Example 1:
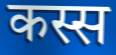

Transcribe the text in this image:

कस्स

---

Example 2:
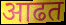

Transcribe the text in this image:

आढत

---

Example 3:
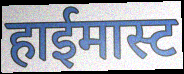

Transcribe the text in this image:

हाईमास्ट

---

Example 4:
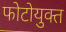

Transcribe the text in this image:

फोटोयुक्त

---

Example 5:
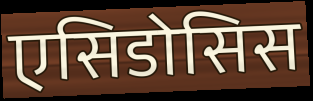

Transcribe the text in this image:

एसिडोसिस